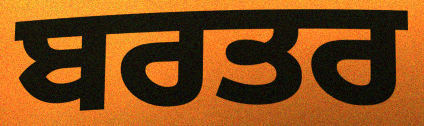
ਬਰਤਰ